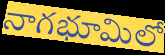
నాగభూమిలో